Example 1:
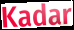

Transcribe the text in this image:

Kadar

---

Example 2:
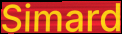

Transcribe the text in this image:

Simard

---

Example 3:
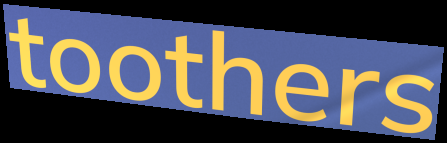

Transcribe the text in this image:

toothers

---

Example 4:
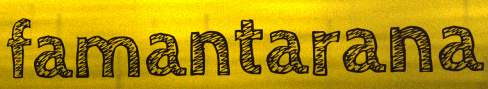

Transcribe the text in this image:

famantarana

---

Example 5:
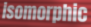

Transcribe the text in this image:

isomorphic